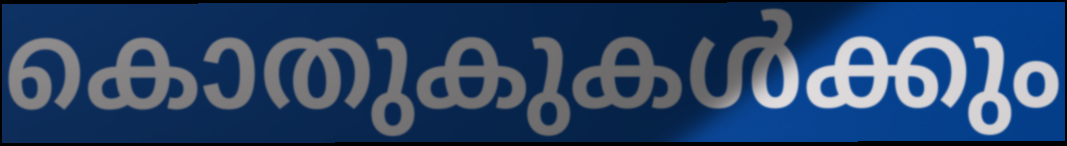
കൊതുകുകൾക്കും